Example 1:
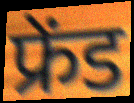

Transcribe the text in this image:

फ्रेंड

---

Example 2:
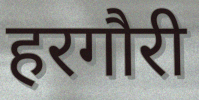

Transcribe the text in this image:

हरगौरी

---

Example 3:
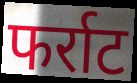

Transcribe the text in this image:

फर्राट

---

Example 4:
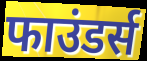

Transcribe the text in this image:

फाउंडर्स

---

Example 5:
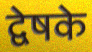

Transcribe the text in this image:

द्वेषके